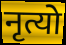
नृत्यो